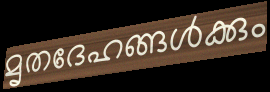
മൃതദേഹങ്ങൾക്കും